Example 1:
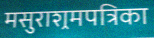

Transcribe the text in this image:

मसुराश्रमपत्रिका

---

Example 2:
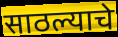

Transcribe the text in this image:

साठल्याचे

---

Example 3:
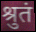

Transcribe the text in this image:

श्रुतं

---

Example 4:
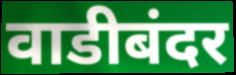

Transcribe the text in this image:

वाडीबंदर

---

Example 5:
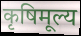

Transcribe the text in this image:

कृषिमूल्य